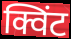
क्विंट